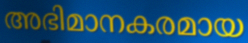
അഭിമാനകരമായ